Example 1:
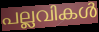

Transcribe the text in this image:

പല്ലവികൾ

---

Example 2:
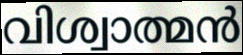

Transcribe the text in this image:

വിശ്വാത്മൻ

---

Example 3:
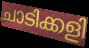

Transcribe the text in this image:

ചാടിക്കളി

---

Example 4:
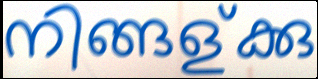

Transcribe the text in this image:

നിങ്ങള്ക്കു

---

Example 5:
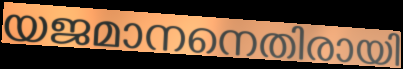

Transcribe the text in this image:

യജമാനനെതിരായി